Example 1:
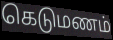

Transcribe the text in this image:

கெடுமணம்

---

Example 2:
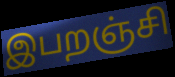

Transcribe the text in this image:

இபறஞ்சி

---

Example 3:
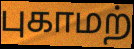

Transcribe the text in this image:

புகாமற்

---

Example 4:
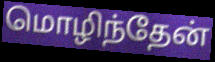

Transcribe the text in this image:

மொழிந்தேன்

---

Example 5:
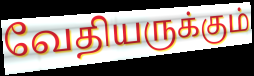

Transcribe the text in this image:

வேதியருக்கும்